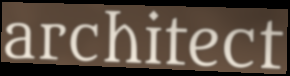
architect